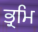
ਭ੍ਰਮਿ